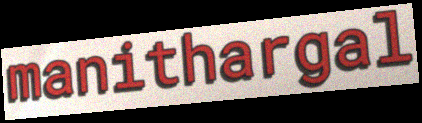
manithargal